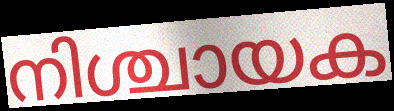
നിശ്ചായക